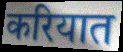
करियात